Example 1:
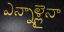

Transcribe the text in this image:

ఎన్నాళ్లైనా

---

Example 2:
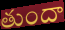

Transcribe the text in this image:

తుందా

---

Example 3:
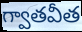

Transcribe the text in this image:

గ్వాతవీత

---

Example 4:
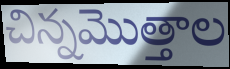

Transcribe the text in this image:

చిన్నమొత్తాల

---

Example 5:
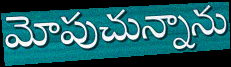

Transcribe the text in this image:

మోపుచున్నాను